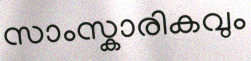
സാംസ്കാരികവും